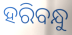
ହରିବନ୍ଧୁ